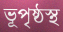
ভূপৃষ্ঠস্থ